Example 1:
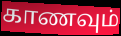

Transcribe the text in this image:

காணவும்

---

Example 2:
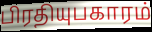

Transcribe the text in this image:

பிரதியுபகாரம்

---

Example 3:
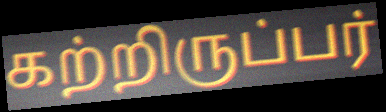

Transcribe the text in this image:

கற்றிருப்பர்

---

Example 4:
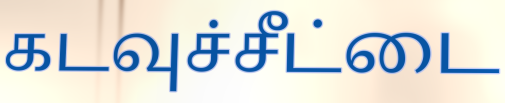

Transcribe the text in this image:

கடவுச்சீட்டை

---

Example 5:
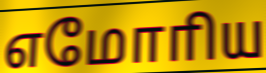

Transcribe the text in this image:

எமோரிய